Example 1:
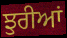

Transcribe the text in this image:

ਝੁਰੀਆਂ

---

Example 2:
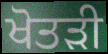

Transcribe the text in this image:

ਖੋਤੜੀ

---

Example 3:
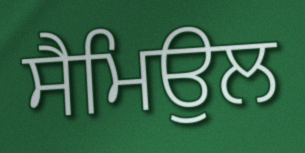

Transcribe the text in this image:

ਸੈਮਿਉਲ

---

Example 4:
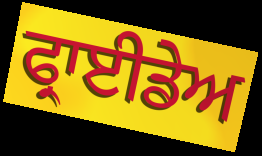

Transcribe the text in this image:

ਫ੍ਰਾਈਡੇਅ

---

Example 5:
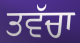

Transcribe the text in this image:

ਤਵੱਚਾ